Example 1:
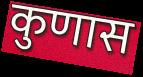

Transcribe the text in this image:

कुणास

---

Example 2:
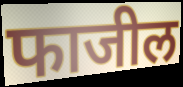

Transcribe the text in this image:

फाजील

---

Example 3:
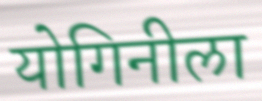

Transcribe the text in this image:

योगिनीला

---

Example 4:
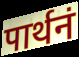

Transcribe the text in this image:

पार्थनं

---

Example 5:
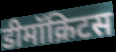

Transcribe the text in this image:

डीमॉक्रिटस